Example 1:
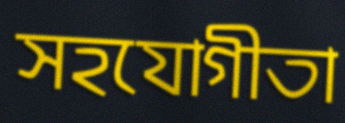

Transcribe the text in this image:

সহযোগীতা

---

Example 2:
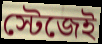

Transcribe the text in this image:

স্টেজেই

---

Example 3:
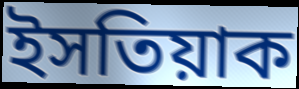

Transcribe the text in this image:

ইসতিয়াক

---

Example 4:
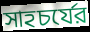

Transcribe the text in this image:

সাহচর্যের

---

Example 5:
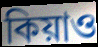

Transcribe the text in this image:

কিয়াও